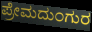
ಪ್ರೇಮದುಂಗುರ